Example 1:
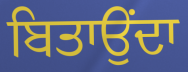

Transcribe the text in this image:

ਬਿਤਾਉਂਦਾ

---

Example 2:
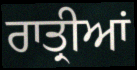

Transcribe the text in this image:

ਰਾਤ੍ਰੀਆਂ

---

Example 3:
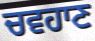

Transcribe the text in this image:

ਚਵਹਾਣ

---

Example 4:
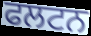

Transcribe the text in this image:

ਫਲਟਨ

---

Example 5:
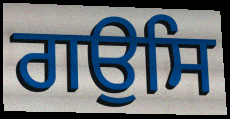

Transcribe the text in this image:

ਗਉਸਿ